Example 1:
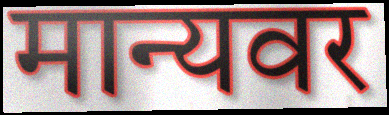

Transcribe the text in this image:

मान्यवर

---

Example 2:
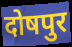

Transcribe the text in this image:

दोषपुर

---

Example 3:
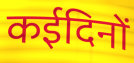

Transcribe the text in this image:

कईदिनों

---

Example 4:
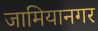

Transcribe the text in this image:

जामियानगर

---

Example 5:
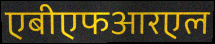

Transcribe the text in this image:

एबीएफआरएल